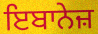
ਇਬਾਨੇਜ਼